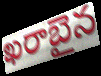
ఖరాబైన